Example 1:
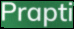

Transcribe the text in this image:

Prapti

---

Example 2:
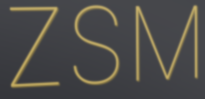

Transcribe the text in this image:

ZSM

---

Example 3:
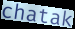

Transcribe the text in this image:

chatak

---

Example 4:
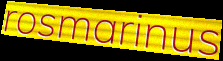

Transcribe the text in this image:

rosmarinus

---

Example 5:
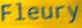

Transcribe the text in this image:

Fleury